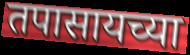
तपासायच्या